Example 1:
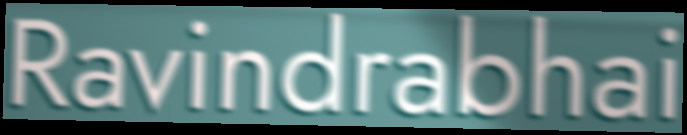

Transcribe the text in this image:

Ravindrabhai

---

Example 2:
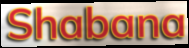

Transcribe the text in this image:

Shabana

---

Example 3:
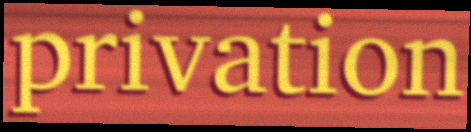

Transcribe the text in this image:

privation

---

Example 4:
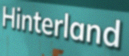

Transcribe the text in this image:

Hinterland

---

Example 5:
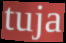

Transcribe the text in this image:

tuja